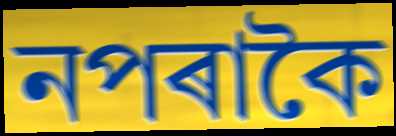
নপৰাকৈ